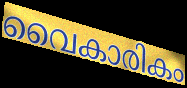
വൈകാരികം